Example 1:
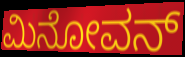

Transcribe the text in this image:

ಮಿನೋವನ್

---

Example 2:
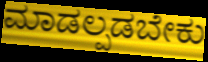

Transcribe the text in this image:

ಮಾಡಲ್ಪಡಬೇಕು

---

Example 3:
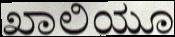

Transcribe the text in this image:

ಖಾಲಿಯೂ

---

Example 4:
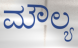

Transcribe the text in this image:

ಮೌಲ್ಯ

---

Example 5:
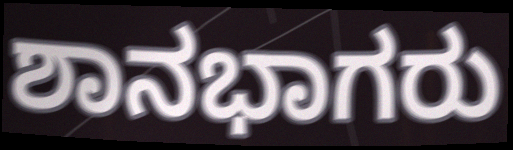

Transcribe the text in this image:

ಶಾನಭಾಗರು